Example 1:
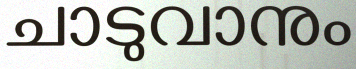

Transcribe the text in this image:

ചാടുവാനും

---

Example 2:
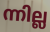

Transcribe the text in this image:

ന്നില്ല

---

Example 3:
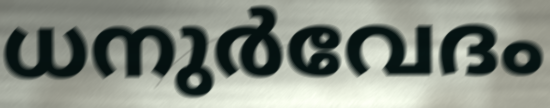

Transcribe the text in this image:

ധനുർവേദം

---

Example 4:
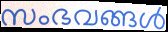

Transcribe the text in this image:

സംഭവങ്ങൾ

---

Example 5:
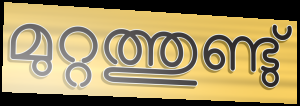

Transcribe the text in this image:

മുറ്റത്തുണ്ടു്